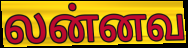
லன்னவ